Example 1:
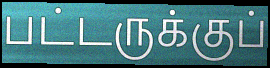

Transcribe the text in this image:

பட்டருக்குப்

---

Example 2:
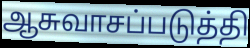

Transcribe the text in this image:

ஆசுவாசப்படுத்தி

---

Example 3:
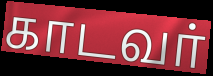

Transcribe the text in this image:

காடவர்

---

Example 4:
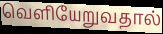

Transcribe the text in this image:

வெளியேறுவதால்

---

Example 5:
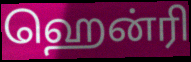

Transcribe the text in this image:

ஹென்ரி